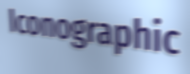
Iconographic